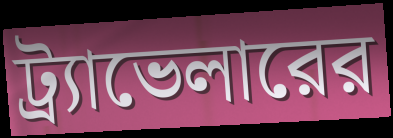
ট্র্যাভেলারের